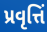
પ્રવૃત્તિં